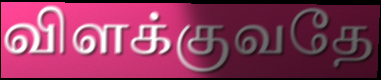
விளக்குவதே